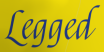
Legged